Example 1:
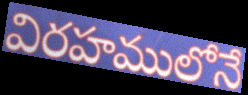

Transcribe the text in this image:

విరహములోనే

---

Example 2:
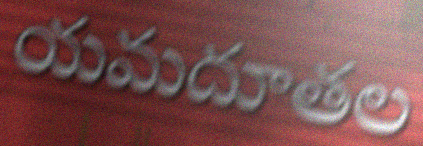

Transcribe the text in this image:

యమదూతల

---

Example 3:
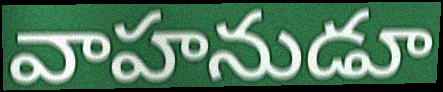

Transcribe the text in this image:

వాహనుడూ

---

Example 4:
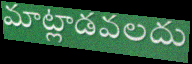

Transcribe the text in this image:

మాట్లాడవలదు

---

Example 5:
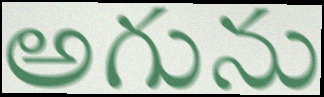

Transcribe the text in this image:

అగును